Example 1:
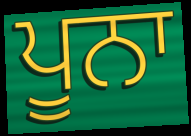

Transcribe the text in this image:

ਪੂਨਾ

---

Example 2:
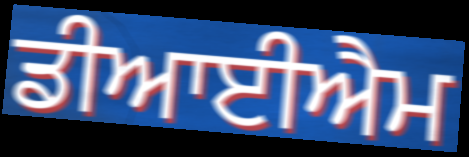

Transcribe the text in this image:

ਡੀਆਈਐਮ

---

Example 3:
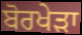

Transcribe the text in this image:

ਬੋਰਖੇੜਾ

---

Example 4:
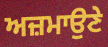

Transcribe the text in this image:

ਅਜ਼ਮਾਉਣੇ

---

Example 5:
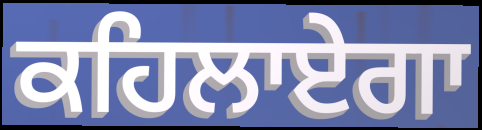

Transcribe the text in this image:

ਕਹਿਲਾਏਗਾ